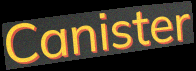
Canister